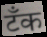
टॅंक